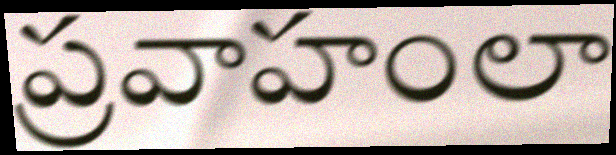
ప్రవాహంలా